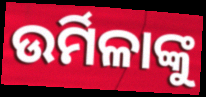
ଉର୍ମିଳାଙ୍କୁ